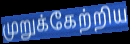
முறுக்கேற்றிய